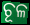
ଚୂଳ